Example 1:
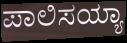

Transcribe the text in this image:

ಪಾಲಿಸಯ್ಯಾ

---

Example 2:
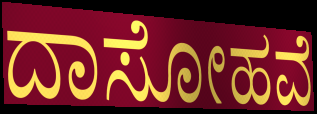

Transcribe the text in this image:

ದಾಸೋಹವೆ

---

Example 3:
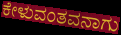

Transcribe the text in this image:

ಕೇಳುವಂತವನಾಗು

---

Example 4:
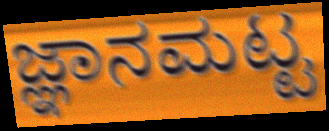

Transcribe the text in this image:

ಜ್ಞಾನಮಟ್ಟ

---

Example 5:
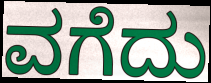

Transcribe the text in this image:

ವಗೆದು